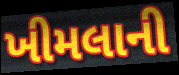
ખીમલાની